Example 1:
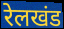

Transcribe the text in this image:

रेलखंड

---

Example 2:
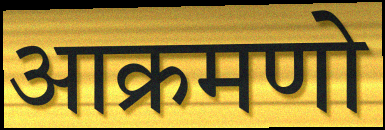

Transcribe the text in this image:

आक्रमणो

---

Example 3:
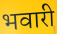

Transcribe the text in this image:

भवारी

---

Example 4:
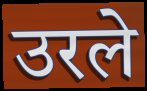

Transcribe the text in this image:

उरले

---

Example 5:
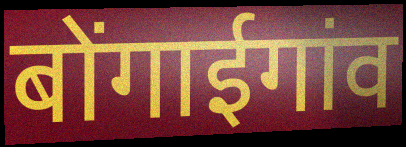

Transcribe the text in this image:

बोंगाईगांव